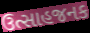
ઉત્સાહજનક